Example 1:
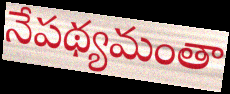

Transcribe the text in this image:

నేపథ్యమంతా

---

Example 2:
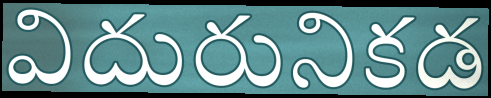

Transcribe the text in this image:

విదురునికడ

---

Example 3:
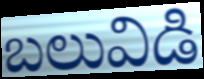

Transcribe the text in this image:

బలువిడి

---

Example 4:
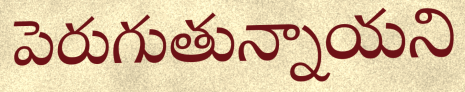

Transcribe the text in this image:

పెరుగుతున్నాయని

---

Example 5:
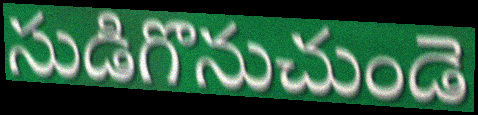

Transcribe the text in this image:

సుడిగొనుచుండె